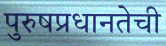
पुरुषप्रधानतेची